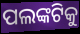
ପଲଙ୍କଟିକୁ